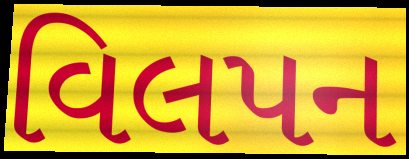
વિલપન